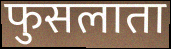
फुसलाता